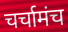
चर्चामंच